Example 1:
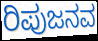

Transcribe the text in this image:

ರಿಪುಜನವ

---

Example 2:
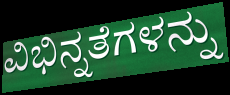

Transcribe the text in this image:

ವಿಭಿನ್ನತೆಗಳನ್ನು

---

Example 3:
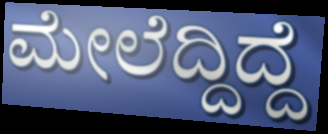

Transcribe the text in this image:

ಮೇಲೆದ್ದಿದ್ದೆ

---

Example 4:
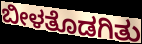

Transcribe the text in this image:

ಬೀಳತೊಡಗಿತು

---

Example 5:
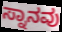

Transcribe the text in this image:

ಸ್ನಾನವು